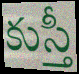
కుస్తీ